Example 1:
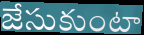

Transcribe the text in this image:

జేసుకుంటా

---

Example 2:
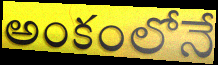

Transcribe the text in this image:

అంకంలోనే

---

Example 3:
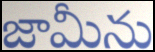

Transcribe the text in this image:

జామీను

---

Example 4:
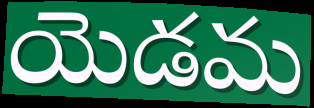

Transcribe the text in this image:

యెడమ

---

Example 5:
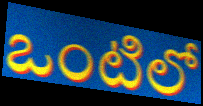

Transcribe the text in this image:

ఒంటిలో